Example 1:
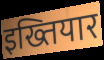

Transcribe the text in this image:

इख्तियार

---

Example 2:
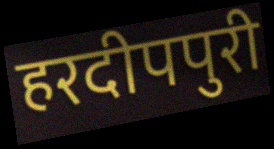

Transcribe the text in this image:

हरदीपपुरी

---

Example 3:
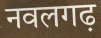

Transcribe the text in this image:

नवलगढ़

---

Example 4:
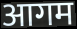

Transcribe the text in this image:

आगम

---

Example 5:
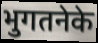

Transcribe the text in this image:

भुगतनेके